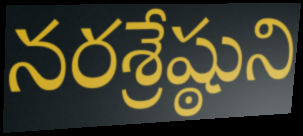
నరశ్రేష్ఠుని